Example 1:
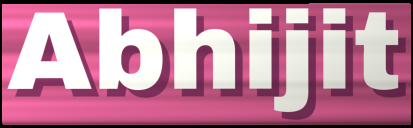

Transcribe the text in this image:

Abhijit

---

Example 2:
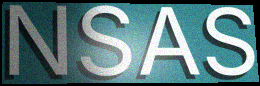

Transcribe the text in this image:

NSAS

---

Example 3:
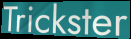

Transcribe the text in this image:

Trickster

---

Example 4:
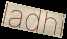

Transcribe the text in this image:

ladhi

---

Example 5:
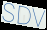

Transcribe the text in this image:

SDV